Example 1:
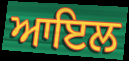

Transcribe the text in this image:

ਆਇਲ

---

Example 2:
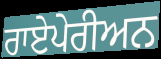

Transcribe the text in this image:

ਰਾਏਪੇਰੀਅਨ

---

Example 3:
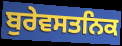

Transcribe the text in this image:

ਬੁਰੇਵਸਤਨਿਕ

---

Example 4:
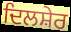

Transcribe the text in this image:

ਦਿਲਸ਼ੇਰ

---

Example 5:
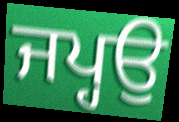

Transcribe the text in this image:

ਜਪ੍ਹਉ